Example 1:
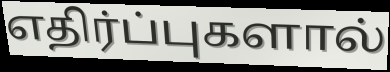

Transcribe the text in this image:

எதிர்ப்புகளால்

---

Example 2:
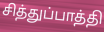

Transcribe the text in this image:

சித்துப்பாத்தி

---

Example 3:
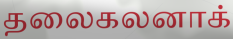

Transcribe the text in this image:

தலைகலனாக்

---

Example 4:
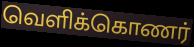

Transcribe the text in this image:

வெளிக்கொணர்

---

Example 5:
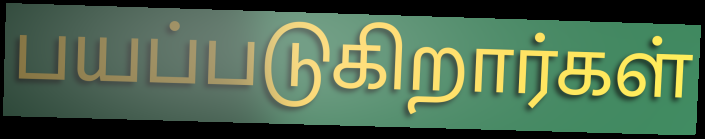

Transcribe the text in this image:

பயப்படுகிறார்கள்